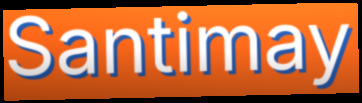
Santimay